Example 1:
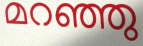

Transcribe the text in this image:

മറഞ്ഞു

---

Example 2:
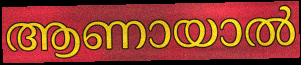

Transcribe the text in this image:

ആണായാൽ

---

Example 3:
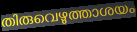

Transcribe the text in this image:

തിരുവെഴുത്താശയം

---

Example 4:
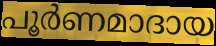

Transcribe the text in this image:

പൂർണമാദായ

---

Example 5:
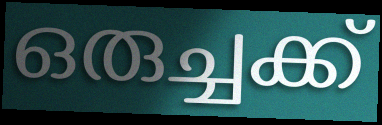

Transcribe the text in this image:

ഒരുച്ചക്ക്